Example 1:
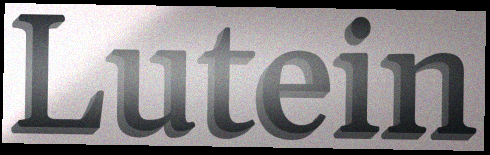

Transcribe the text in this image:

Lutein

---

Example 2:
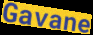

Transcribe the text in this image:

Gavane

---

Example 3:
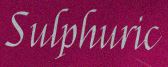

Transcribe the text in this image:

Sulphuric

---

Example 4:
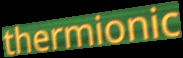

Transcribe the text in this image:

thermionic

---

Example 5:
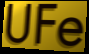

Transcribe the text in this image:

UFe